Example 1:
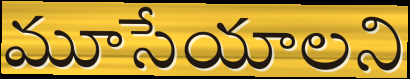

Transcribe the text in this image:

మూసేయాలని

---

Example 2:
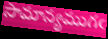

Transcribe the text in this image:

సామాన్యముగఁ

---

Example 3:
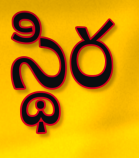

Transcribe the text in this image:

స్థిర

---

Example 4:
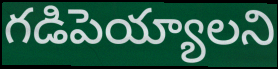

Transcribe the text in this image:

గడిపెయ్యాలని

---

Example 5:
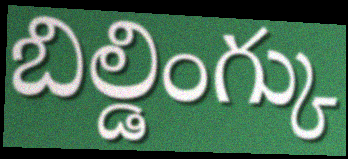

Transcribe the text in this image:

బిల్డింగ్కు